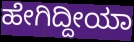
ಹೇಗಿದ್ದೀಯಾ